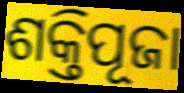
ଶକ୍ତିପୂଜା